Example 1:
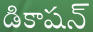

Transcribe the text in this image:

డికాషన్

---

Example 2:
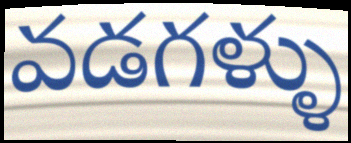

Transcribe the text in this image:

వడగళ్ళు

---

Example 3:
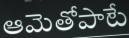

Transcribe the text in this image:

ఆమెతోపాటే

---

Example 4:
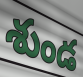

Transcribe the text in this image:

శుండ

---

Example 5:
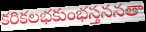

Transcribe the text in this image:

కరికలభకుంభస్తననతా